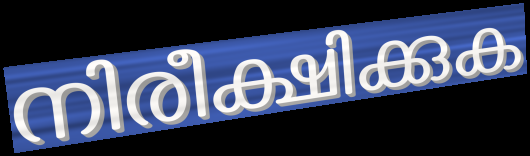
നിരീക്ഷിക്കുക